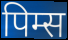
पिम्स